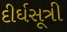
દીર્ઘસૂત્રી